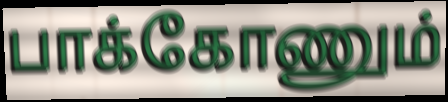
பாக்கோணும்